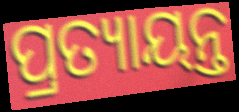
ପ୍ରତ୍ୟାୟନ୍ତ